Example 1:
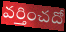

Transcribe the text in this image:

వర్తించదో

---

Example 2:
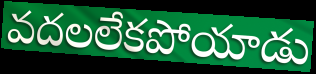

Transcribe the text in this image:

వదలలేకపోయాడు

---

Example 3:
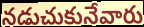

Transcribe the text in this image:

నడుచుకునేవారు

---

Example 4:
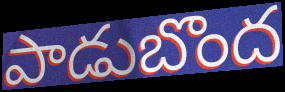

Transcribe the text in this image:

పాడుబొంద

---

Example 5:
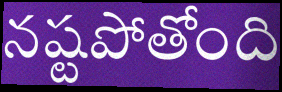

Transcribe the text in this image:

నష్టపోతోంది